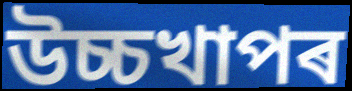
উচ্চখাপৰ